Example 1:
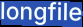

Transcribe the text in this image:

longfile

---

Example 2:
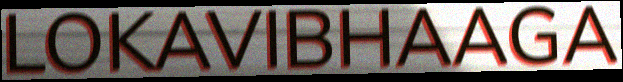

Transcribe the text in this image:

LOKAVIBHAAGA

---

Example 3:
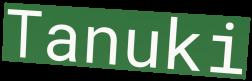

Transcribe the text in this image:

Tanuki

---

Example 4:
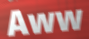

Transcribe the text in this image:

Aww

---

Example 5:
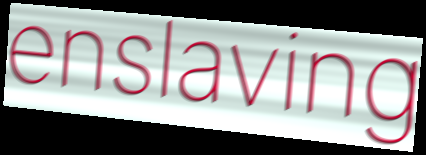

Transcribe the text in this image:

enslaving